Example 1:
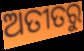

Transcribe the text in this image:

ଅତୀତରୁ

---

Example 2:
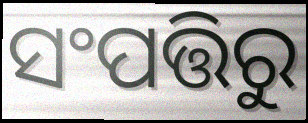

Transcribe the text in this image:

ସଂପତ୍ତିରୁ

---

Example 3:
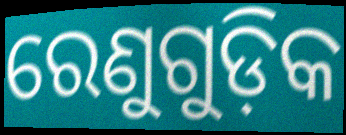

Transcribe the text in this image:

ରେଣୁଗୁଡ଼ିକ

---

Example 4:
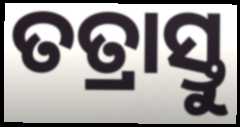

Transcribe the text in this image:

ତତ୍ରାସ୍ତୁ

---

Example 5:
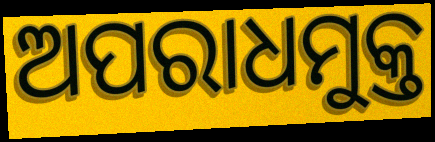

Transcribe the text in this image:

ଅପରାଧମୁକ୍ତ